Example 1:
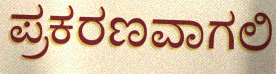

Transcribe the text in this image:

ಪ್ರಕರಣವಾಗಲಿ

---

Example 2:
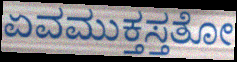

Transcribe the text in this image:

ಏವಮುಕ್ತಸ್ತತೋ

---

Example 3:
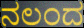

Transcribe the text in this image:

ನಲಂದ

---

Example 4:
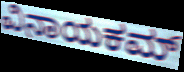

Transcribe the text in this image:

ವಿನಾಯಕಮ್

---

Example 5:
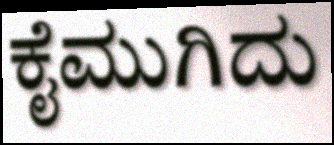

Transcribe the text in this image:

ಕೈಮುಗಿದು